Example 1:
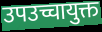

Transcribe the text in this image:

उपउच्चायुक्त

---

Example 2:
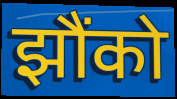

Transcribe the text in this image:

झौंको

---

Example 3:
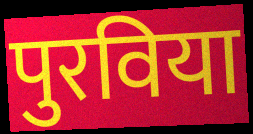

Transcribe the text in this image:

पुरविया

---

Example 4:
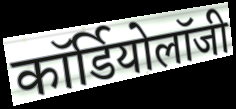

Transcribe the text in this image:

कॉर्डियोलॉजी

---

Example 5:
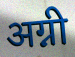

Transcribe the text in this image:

अग्नी